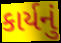
કાર્યનું